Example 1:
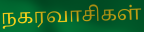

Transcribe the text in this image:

நகரவாசிகள்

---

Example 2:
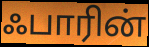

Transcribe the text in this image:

ஃபாரின்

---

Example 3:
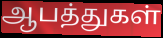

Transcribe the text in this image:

ஆபத்துகள்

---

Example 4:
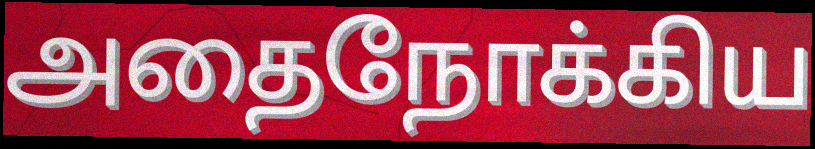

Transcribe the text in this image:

அதைநோக்கிய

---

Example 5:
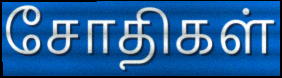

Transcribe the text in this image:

சோதிகள்